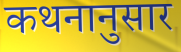
कथनानुसार